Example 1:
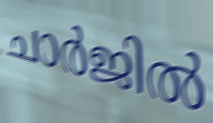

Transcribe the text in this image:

ചാർജിൽ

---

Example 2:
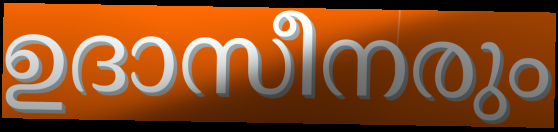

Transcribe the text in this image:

ഉദാസീനരും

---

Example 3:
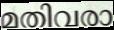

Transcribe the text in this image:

മതിവരാ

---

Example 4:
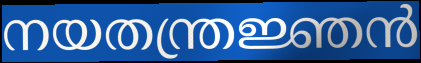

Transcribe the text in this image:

നയതന്ത്രജ്ഞൻ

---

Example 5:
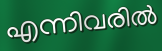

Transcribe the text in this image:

എന്നിവരിൽ